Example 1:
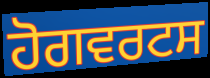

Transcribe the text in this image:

ਹੋਗਵਰਟਸ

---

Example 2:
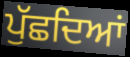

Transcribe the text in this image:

ਪੁੱਛਦਿਆਂ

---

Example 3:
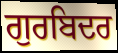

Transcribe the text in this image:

ਗੁਰਬਿਦਰ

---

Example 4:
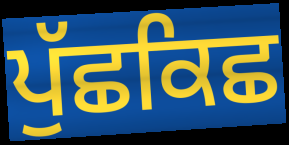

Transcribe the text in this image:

ਪੁੱਛਕਿਛ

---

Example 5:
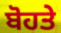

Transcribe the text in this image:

ਬੋਹਤੇ